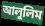
আলুলিম